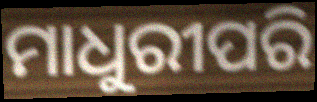
ମାଧୁରୀପରି